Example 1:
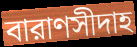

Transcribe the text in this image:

বারাণসীদাহ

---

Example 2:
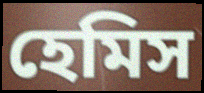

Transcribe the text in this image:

হেমিস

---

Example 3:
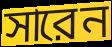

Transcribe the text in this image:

সারেন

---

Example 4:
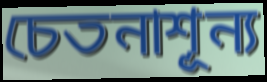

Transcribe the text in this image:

চেতনাশূন্য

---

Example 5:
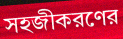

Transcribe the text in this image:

সহজীকরণের